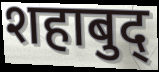
शहाबुद्